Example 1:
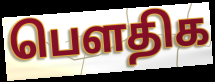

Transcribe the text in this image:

பௌதிக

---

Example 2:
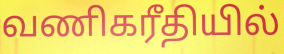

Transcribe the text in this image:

வணிகரீதியில்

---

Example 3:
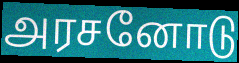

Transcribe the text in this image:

அரசனோடு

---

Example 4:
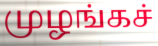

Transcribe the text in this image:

முழங்கச்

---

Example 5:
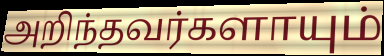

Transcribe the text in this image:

அறிந்தவர்களாயும்